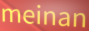
meinan